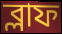
ব্লাফ